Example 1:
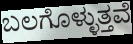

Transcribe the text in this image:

ಬಲಗೊಳ್ಳುತ್ತವೆ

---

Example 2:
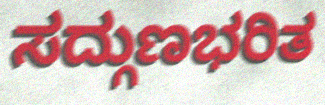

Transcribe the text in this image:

ಸದ್ಗುಣಭರಿತ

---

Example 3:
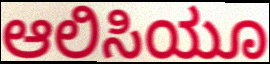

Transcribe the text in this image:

ಆಲಿಸಿಯೂ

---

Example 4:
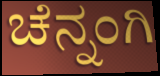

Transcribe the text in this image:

ಚೆನ್ನಂಗಿ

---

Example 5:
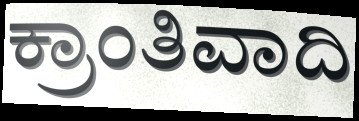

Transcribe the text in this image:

ಕ್ರಾಂತಿವಾದಿ